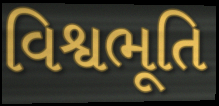
વિશ્વભૂતિ